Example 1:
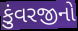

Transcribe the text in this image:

કુંવરજીનો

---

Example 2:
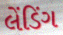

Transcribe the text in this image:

લેંડિંગ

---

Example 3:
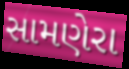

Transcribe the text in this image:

સામણેરા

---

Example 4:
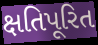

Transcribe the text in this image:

ક્ષતિપૂરિત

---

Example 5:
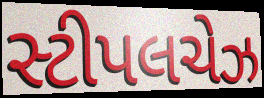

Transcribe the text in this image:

સ્ટીપલચેઝ